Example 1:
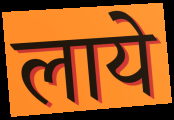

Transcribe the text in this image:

लाये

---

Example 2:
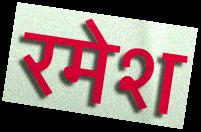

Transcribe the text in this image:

रमेश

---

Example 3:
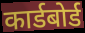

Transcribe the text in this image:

कार्डबोर्ड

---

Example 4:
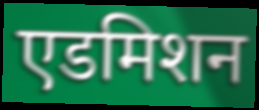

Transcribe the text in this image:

एडमिशन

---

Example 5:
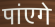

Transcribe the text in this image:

पांएगे